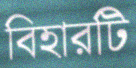
বিহারটি